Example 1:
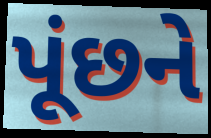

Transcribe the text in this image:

પૂંછને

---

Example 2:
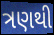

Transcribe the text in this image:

ત્રણથી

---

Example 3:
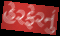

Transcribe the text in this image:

હેરફેરનું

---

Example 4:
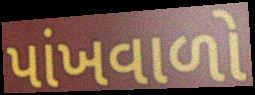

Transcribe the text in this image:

પાંખવાળો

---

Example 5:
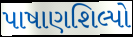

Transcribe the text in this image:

પાષાણશિલ્પો